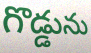
గొడ్డును